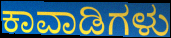
ಕಾವಾಡಿಗಳು